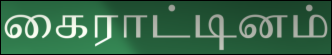
கைராட்டினம்